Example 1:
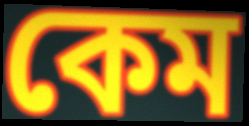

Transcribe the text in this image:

কেম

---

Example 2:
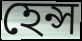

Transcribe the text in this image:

হেন্স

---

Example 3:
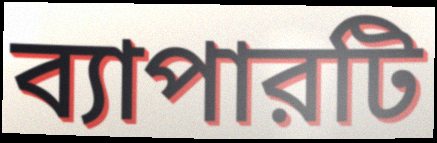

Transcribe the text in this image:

ব্যাপারটি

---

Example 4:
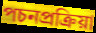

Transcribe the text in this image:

পচনপ্রক্রিয়া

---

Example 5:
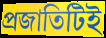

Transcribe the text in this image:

প্রজাতিটিই